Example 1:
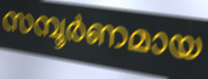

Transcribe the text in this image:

സമ്പൂർണമായ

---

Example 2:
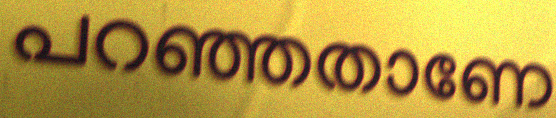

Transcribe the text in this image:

പറഞ്ഞതാണേ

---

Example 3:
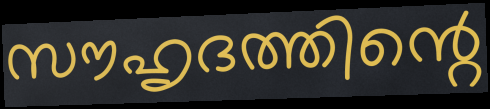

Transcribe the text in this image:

സൗഹൃദത്തിന്റെ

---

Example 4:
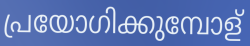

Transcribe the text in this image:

പ്രയോഗിക്കുമ്പോള്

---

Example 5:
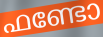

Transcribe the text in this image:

ഫണ്ടോ